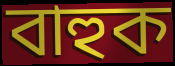
বাহুক